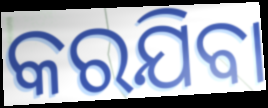
କରଯିବା